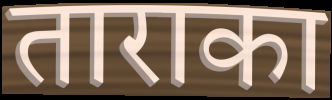
ताराका